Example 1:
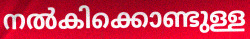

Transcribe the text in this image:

നൽകിക്കൊണ്ടുള്ള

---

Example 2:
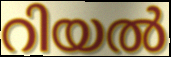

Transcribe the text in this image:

റിയൽ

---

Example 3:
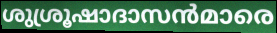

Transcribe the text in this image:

ശുശ്രൂഷാദാസൻമാരെ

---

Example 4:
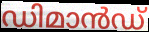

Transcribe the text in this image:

ഡിമാൻഡ്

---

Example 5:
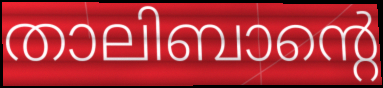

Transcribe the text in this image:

താലിബാന്റെ